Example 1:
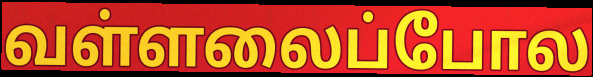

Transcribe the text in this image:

வள்ளலைப்போல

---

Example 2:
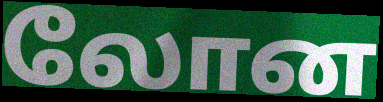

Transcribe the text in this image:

லோன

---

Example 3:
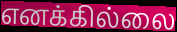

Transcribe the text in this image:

எனக்கில்லை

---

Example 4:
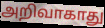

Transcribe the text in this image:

அறிவாகாது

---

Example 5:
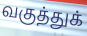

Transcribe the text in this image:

வகுத்துக்